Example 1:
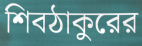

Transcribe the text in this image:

শিবঠাকুরের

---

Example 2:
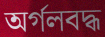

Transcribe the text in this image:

অর্গলবদ্ধ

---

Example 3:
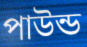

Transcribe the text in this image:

পাউন্ড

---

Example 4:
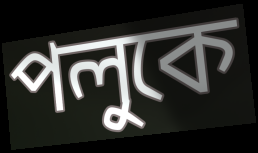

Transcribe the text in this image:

পলুকে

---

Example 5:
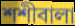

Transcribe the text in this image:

শশীবালা